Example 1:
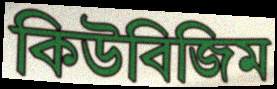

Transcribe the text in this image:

কিউবিজিম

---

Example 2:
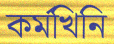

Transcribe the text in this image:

কৰ্মখিনি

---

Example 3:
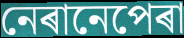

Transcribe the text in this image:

নেৰানেপেৰা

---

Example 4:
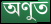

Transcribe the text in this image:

অণুত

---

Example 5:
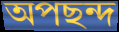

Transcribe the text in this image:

অপছন্দ